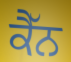
ਕੈੱਨ